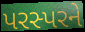
પરસ્પરને